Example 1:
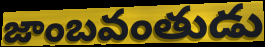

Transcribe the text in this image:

జాంబవంతుడు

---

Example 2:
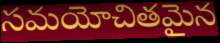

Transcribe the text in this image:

సమయోచితమైన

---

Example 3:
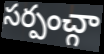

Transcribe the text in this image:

సర్పంచ్గా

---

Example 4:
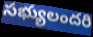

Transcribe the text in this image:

సభ్యులందరి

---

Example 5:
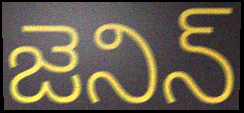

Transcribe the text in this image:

జెనిన్